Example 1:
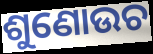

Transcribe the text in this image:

ଶୁଣୋଉଚ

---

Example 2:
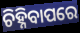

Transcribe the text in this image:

ଚିହ୍ନିବାପରେ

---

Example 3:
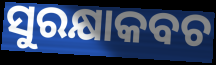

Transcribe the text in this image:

ସୁରକ୍ଷାକବଚ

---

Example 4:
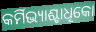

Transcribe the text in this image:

କର୍ମିଭ୍ୟାଶ୍ଚାଧିକୋ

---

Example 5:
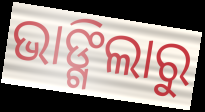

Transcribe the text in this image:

ଭାଙ୍ଗିଲାରୁ